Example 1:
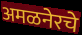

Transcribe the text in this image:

अमळनेरचे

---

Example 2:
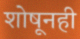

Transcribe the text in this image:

शोषूनही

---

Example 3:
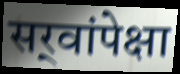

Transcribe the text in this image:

सर्वांपेक्षा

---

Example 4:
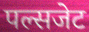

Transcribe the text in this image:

पल्सजेट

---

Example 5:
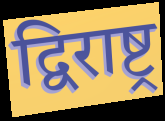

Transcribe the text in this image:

द्विराष्ट्र